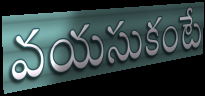
వయసుకంటే